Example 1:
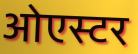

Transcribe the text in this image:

ओएस्टर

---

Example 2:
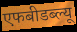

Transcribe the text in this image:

एफबीडब्ल्यू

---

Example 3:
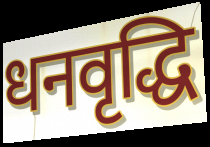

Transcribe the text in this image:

धनवृद्धि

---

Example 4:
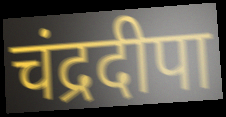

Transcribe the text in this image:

चंद्रदीपा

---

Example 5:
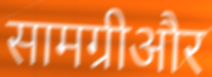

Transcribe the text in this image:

सामग्रीऔर